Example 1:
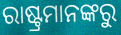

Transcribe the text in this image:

ରାଷ୍ଟ୍ରମାନଙ୍କରୁ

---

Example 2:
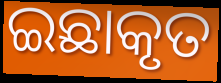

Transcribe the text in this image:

ଇଛାକୃତ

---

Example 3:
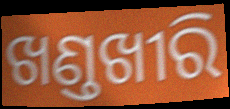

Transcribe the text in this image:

ଖଣ୍ଡଖୀରି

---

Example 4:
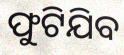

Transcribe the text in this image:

ଫୁଟିଯିବ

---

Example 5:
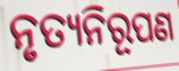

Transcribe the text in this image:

ନୃତ୍ୟନିରୂପଣ